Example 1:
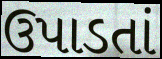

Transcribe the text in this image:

ઉપાડતાં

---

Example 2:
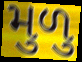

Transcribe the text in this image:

મુળુ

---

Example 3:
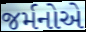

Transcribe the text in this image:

જર્મનોએ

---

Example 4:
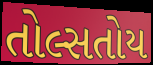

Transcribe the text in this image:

તોલ્સતોય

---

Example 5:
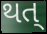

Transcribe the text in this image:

થત્